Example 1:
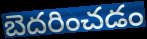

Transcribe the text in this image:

బెదరించడం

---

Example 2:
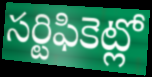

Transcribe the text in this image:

సర్టిఫికెట్లో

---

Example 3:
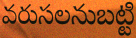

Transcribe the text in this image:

వరుసలనుబట్టి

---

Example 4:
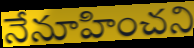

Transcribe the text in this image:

నేనూహించని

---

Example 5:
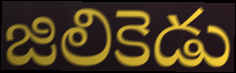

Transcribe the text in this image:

జిలికెడు